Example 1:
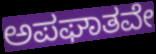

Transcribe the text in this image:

ಅಪಘಾತವೇ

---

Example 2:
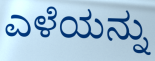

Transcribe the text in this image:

ಎಳೆಯನ್ನು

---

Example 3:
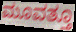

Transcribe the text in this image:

ಮೂವತ್ತೂ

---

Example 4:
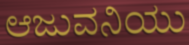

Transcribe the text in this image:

ಆಜುವನಿಯು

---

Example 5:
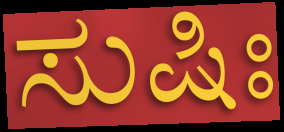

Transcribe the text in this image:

ಸುಷಿಃ